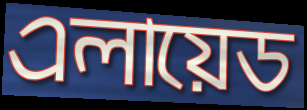
এলায়েড